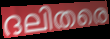
ദലിതരെ